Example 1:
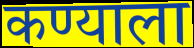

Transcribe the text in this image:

कण्याला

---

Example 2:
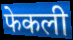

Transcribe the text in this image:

फेकली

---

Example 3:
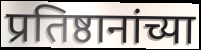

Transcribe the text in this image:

प्रतिष्ठानांच्या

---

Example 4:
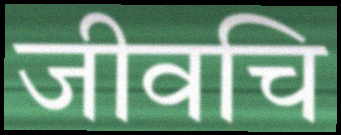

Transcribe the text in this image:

जीवचि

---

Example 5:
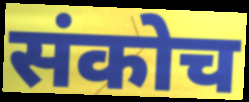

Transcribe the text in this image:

संकोच